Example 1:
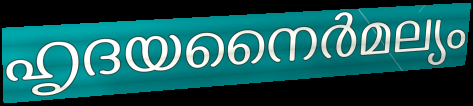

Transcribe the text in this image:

ഹൃദയനൈർമല്യം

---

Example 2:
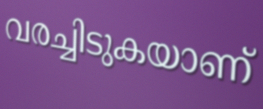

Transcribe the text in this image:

വരച്ചിടുകയാണ്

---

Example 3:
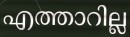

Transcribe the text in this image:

എത്താറില്ല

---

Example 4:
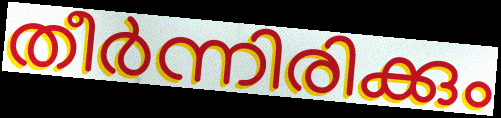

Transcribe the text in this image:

തീർന്നിരിക്കും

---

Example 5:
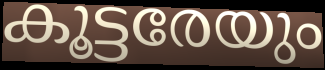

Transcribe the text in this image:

കൂട്ടരേയും